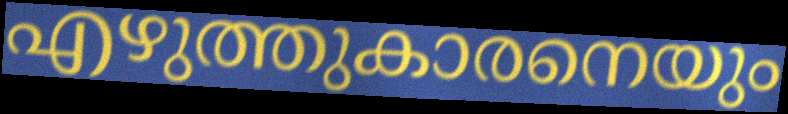
എഴുത്തുകാരനെയും